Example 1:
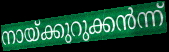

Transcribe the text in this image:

നായ്ക്കുറുക്കൻന്ന്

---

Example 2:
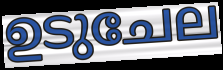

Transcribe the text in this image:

ഉടുചേല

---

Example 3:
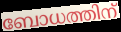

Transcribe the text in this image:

ബോധത്തിന്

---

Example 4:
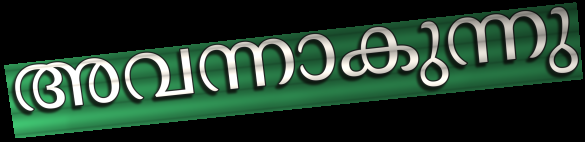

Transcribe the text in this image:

അവന്നാകുന്നു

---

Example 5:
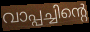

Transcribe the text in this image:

വാപ്പച്ചിന്റെ